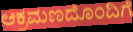
ಆಕ್ರಮಣದೊಂದಿಗೆ